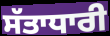
ਸੱਤਾਧਾਰੀ